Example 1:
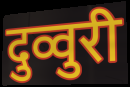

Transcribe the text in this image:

दुव्वुरी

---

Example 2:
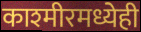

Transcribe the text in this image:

काश्‍मीरमध्येही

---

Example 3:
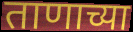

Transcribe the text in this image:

ताणाच्या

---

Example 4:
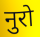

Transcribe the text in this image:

नुरो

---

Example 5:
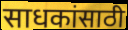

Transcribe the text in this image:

साधकांसाठी